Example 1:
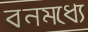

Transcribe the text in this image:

বনমধ্যে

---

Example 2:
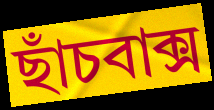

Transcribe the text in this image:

ছাঁচবাক্স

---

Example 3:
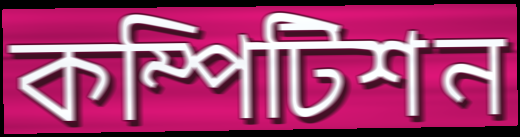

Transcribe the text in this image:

কম্পিটিশন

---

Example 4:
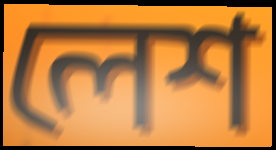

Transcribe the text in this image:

লেশ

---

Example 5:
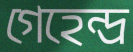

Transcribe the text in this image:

গেহেন্দ্র